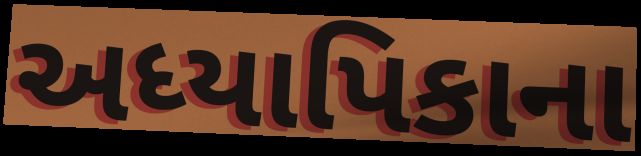
અધ્યાપિકાના